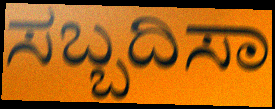
ಸಬ್ಬದಿಸಾ